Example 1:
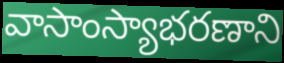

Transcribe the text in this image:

వాసాంస్యాభరణాని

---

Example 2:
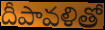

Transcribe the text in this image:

దీపావళితో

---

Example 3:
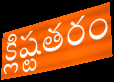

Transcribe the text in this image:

క్లిష్టతరం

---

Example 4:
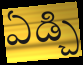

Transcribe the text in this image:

ఏడ్చి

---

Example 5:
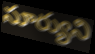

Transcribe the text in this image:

సూర్యుని